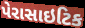
પેરાસાઇટિક